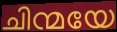
ചിന്മയേ